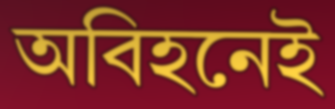
অবিহনেই